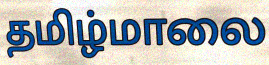
தமிழ்மாலை